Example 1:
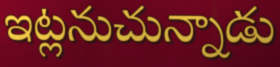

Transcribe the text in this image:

ఇట్లనుచున్నాడు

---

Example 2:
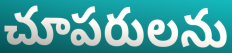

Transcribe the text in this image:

చూపరులను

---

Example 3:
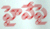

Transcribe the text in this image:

హైవేపై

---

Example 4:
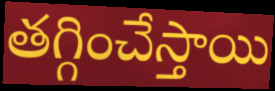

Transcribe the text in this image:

తగ్గించేస్తాయి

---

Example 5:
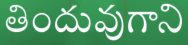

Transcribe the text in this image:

తిందువుగాని